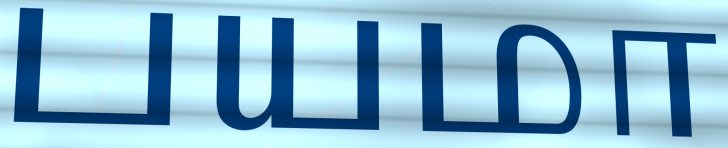
பயமா